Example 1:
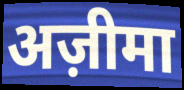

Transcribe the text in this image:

अज़ीमा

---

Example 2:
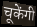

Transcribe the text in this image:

चूकेंगी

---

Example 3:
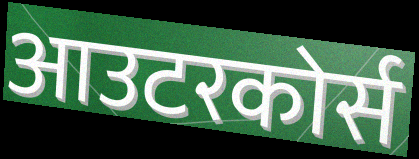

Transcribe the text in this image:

आउटरकोर्स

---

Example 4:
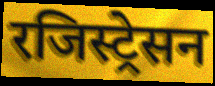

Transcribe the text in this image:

रजिस्ट्रेसन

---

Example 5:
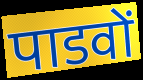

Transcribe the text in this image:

पाडवों